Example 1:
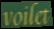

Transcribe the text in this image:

voilet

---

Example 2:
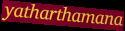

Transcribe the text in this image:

yatharthamana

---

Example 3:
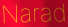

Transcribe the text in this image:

Narad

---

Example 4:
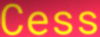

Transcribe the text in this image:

Cess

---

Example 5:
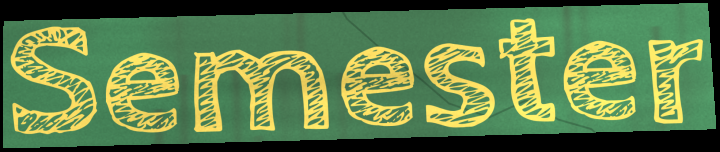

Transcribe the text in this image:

Semester